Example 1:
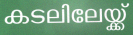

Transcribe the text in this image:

കടലിലേയ്ക്ക്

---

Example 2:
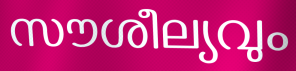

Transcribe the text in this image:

സൗശീല്യവും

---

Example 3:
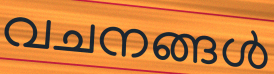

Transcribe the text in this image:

വചനങ്ങൾ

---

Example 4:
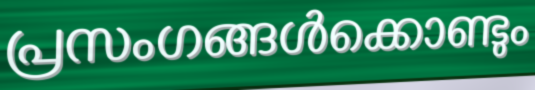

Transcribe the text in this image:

പ്രസംഗങ്ങൾക്കൊണ്ടും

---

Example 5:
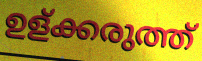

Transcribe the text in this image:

ഉള്ക്കരുത്ത്